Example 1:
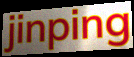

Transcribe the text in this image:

jinping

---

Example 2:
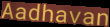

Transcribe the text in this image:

Aadhavan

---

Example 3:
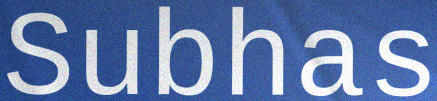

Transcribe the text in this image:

Subhas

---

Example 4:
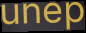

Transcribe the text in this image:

unep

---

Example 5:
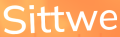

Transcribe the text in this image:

Sittwe